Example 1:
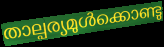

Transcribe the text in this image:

താല്പര്യമുൾക്കൊണ്ടു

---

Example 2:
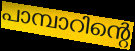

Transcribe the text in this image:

പാമ്പാറിന്റെ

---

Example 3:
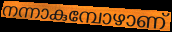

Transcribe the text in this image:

നന്നാകുമ്പോഴാണ്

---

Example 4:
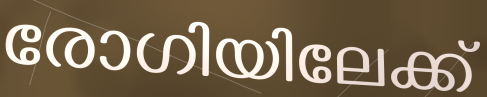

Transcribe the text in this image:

രോഗിയിലേക്ക്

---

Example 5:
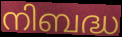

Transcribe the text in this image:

നിബദ്ധ